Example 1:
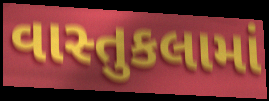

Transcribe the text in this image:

વાસ્તુકલામાં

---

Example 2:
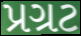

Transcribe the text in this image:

પ્રગ્રટ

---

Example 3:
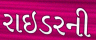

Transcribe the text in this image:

રાઇડરની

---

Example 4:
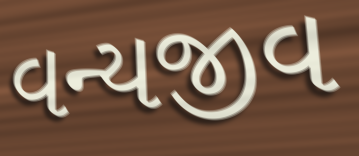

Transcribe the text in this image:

વન્યજીવ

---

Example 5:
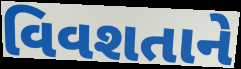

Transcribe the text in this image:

વિવશતાને